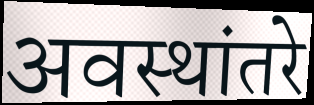
अवस्थांतरे